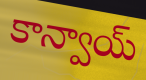
కాన్వాయ్